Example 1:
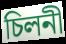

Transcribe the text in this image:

চিলনী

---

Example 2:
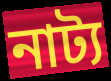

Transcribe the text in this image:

নাট্য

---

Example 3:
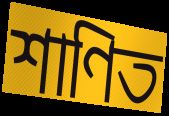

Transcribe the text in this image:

শাণিত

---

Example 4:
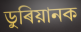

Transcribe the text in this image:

ডুৰিয়ানক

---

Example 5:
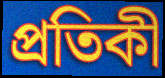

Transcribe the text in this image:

প্ৰতিকী